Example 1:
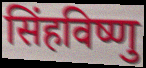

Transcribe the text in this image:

सिंहविष्णु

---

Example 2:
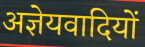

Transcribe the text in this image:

अज्ञेयवादियों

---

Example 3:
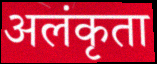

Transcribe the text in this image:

अलंकृता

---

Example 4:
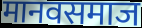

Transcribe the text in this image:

मानवसमाज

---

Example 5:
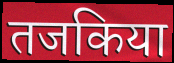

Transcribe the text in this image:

तजकिया